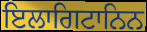
ਇਲਾਗਿਟਾਨਿਨ